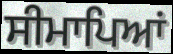
ਸੀਮਾਪਿਆਂ